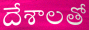
దేశాలతో